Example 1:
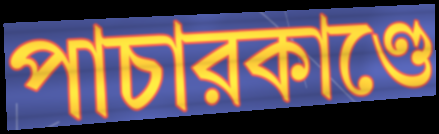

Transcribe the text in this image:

পাচারকাণ্ডে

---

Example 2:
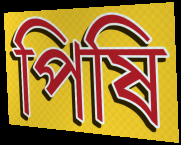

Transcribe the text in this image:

পিষি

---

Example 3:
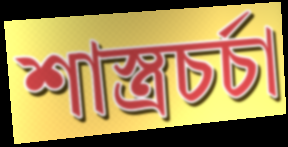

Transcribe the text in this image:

শাস্ত্রচর্চা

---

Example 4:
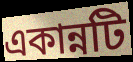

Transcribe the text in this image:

একান্নটি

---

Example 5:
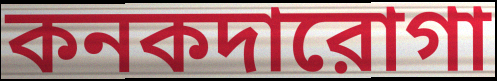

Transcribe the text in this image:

কনকদারোগা